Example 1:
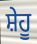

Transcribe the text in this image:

ਸ਼ੇਹੂ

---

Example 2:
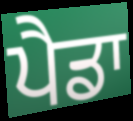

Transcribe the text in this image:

ਪੈਡਾ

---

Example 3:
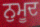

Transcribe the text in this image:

ਨੁਮੂਦ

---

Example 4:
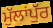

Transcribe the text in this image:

ਮੁੱਲਾਂਪੁੱਰ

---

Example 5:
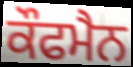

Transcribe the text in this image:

ਕੌਫਮੈਨ